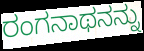
ರಂಗನಾಥನನ್ನು